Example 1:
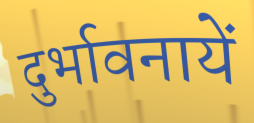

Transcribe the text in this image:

दुर्भावनायें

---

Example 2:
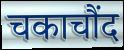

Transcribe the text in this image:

चकाचौंद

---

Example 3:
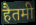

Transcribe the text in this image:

हैतमी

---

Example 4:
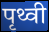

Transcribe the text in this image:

पृथ्वी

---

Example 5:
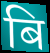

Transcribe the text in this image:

बि